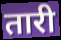
तारी